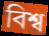
বিশ্ব